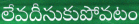
లేవదీసుకుపోవటం